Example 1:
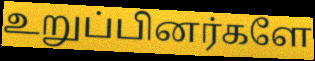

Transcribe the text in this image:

உறுப்பினர்களே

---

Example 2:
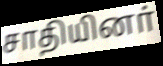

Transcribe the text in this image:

சாதியினர்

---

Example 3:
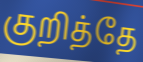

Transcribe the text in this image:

குறித்தே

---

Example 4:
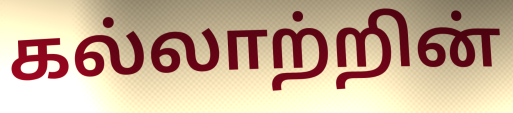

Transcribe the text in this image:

கல்லாற்றின்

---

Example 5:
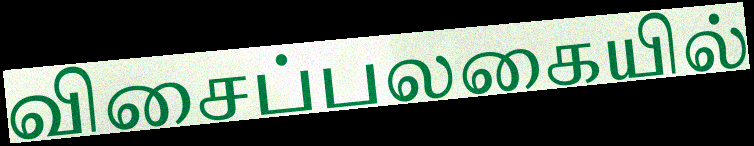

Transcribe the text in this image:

விசைப்பலகையில்